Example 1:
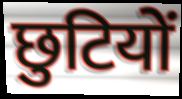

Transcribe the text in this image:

छुटियों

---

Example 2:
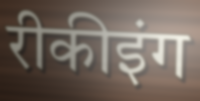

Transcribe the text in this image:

रीकीइंग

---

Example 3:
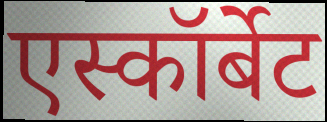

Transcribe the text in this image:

एस्कॉर्बेट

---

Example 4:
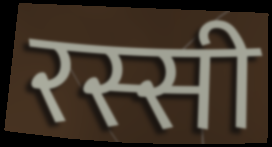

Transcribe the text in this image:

रस्‍सी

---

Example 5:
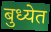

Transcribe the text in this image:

बुध्येत